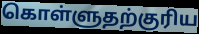
கொள்ளுதற்குரிய